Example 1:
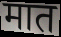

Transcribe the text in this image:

मात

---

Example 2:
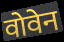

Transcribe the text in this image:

वोवेन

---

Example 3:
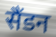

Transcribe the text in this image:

सैंडन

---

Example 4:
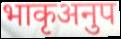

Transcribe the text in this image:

भाकृअनुप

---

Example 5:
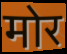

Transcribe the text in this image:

मोर